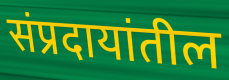
संप्रदायांतील